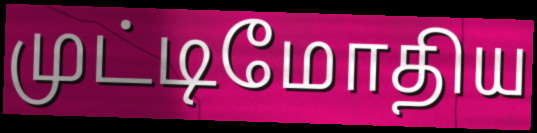
முட்டிமோதிய